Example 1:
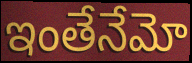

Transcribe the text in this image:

ఇంతేనేమో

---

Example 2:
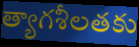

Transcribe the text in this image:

త్యాగశీలతకు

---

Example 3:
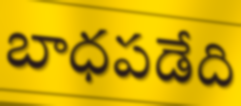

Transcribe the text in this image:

బాధపడేది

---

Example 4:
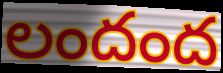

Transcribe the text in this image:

లందంద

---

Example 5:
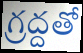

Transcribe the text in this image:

గ్రద్దతో